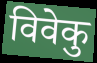
विवेकु